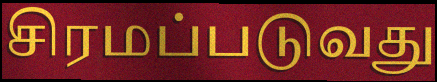
சிரமப்படுவது